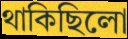
থাকিছিলো